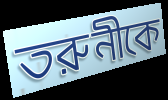
তরুনীকে